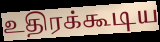
உதிரக்கூடிய